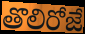
తొలిరోజే